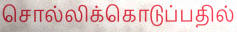
சொல்லிக்கொடுப்பதில்